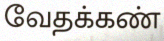
வேதக்கண்